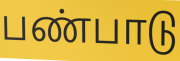
பண்பாடு